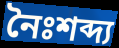
নৈঃশব্দ্য